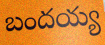
బందయ్య